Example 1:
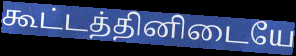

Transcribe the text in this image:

கூட்டத்தினிடையே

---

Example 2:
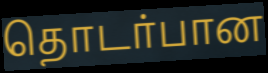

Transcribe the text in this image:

தொடர்பான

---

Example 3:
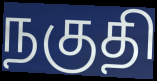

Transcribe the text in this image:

நகுதி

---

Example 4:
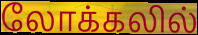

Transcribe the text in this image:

லோக்கலில்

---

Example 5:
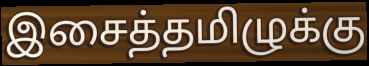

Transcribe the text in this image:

இசைத்தமிழுக்கு